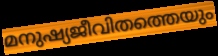
മനുഷ്യജീവിതത്തെയും